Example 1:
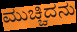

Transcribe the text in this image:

ಮುಚ್ಚಿದನು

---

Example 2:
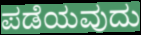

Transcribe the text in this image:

ಪಡೆಯವುದು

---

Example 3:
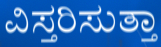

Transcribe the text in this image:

ವಿಸ್ತರಿಸುತ್ತಾ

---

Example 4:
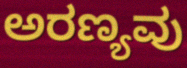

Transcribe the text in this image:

ಅರಣ್ಯವು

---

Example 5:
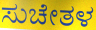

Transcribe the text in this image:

ಸುಚೇತಳ